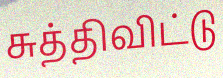
சுத்திவிட்டு